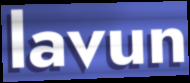
lavun